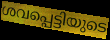
ശവപ്പെട്ടിയുടെ